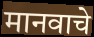
मानवाचे